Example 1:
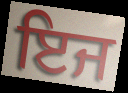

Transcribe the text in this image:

ਇਜ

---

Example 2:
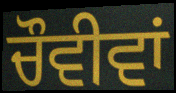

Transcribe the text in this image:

ਚੌਵੀਵਾਂ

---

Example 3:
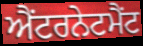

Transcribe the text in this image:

ਐਂਟਰਨੇਟਮੈਂਟ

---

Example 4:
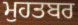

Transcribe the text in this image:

ਮੁਹਤਬਰ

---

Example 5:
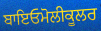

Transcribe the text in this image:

ਬਾਇਓਮੋਲੀਕੂਲਰ